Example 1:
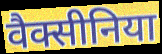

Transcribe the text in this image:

वैक्सीनिया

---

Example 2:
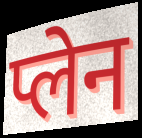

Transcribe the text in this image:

प्लेन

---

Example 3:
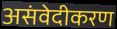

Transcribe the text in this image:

असंवेदीकरण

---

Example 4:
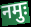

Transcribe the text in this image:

नमुः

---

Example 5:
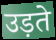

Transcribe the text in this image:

उड़ते